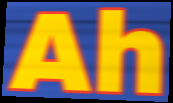
Ah